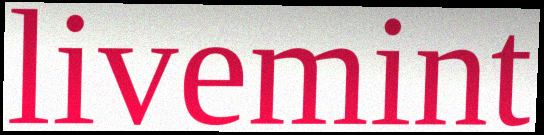
livemint